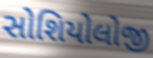
સોશિયોલોજી